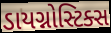
ડાયગ્નોસ્ટિક્સ